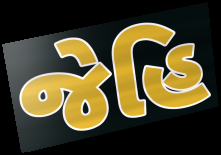
જેહિ